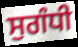
ਸੁਗੰਧੀ